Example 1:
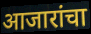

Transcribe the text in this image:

आजारांचा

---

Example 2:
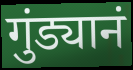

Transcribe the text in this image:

गुंड्यानं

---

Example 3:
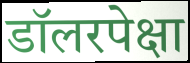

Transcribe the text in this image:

डॉलरपेक्षा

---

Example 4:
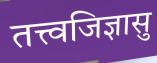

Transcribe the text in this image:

तत्त्वजिज्ञासु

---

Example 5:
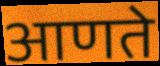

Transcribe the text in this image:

आणते